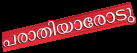
പരാതിയാരോടു